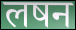
लषन